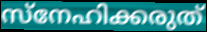
സ്നേഹിക്കരുത്